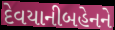
દેવયાનીબહેનને